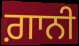
ਗ਼ਾਨੀ